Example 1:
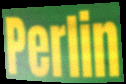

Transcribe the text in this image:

Perlin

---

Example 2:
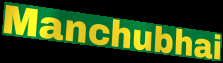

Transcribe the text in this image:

Manchubhai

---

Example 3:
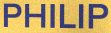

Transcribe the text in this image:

PHILIP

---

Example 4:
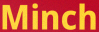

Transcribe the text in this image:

Minch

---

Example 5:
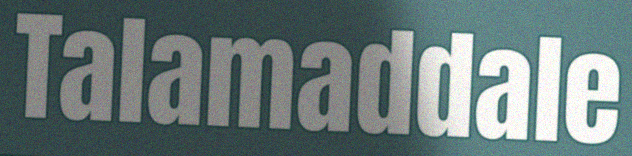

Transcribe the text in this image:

Talamaddale